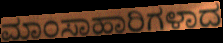
ಮಾಂಸಾಹಾರಿಗಳಾದ